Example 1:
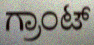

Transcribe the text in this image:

ಗ್ರಾಂಟ್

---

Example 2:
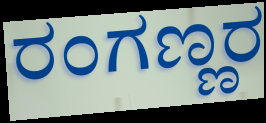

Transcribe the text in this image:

ರಂಗಣ್ಣರ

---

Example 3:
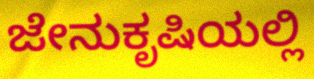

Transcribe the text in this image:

ಜೇನುಕೃಷಿಯಲ್ಲಿ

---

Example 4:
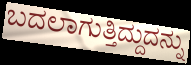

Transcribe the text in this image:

ಬದಲಾಗುತ್ತಿದ್ದುದನ್ನು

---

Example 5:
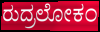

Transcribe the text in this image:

ರುದ್ರಲೋಕಂ